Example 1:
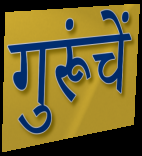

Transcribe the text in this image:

गुरूंचें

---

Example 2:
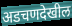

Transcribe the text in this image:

अडचणदेखील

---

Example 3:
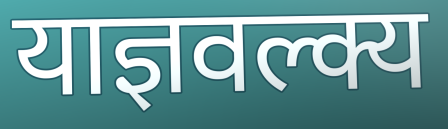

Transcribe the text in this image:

याज्ञवल्क्य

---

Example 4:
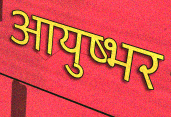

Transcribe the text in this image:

आयुष्भर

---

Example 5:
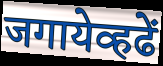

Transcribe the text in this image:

जगायेव्हढें